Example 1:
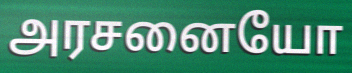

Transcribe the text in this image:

அரசனையோ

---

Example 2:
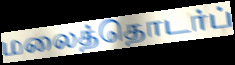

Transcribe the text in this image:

மலைத்தொடர்ப்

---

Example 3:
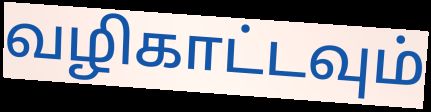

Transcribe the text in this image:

வழிகாட்டவும்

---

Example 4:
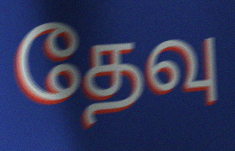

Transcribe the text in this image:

தேவு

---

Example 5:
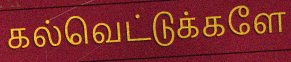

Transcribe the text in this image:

கல்வெட்டுக்களே